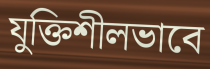
যুক্তিশীলভাবে